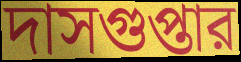
দাসগুপ্তার